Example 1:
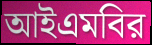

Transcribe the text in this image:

আইএমবির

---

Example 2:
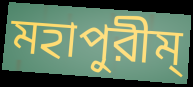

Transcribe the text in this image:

মহাপুরীম্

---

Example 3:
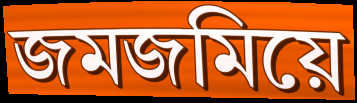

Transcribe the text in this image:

জমজমিয়ে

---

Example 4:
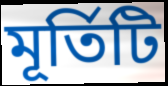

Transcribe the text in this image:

মূর্তিটি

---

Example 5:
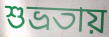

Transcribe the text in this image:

শুভ্রতায়